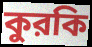
কুরকি